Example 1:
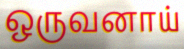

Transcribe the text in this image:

ஒருவனாய்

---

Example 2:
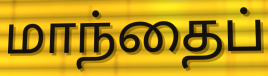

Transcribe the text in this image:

மாந்தைப்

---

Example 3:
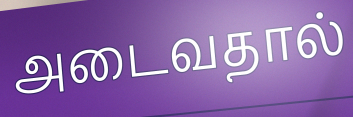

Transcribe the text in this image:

அடைவதால்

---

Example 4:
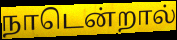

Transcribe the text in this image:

நாடென்றால்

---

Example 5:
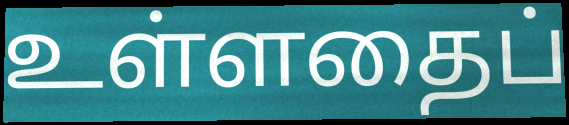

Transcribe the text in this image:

உள்ளதைப்